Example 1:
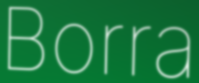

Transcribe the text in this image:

Borra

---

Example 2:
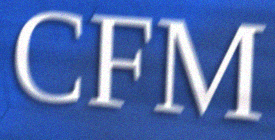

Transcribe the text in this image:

CFM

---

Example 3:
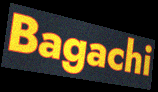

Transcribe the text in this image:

Bagachi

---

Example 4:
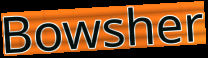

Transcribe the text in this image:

Bowsher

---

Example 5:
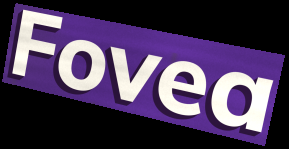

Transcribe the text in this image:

Fovea